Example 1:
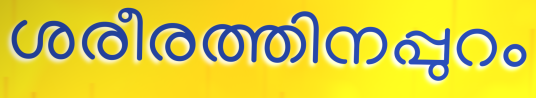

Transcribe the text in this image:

ശരീരത്തിനപ്പുറം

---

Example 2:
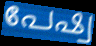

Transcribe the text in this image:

പേഷ്വ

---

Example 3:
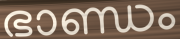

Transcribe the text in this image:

ഭാണ്ഡം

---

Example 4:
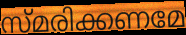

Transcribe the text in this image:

സ്മരിക്കണമേ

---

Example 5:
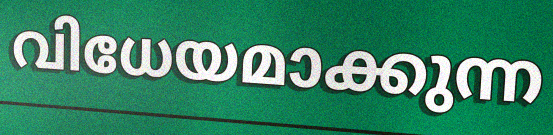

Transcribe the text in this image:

വിധേയമാക്കുന്ന